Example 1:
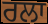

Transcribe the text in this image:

ਰਲਾ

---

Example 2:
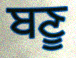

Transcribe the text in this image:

ਬਣੂ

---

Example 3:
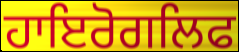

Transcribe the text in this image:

ਹਾਇਰੋਗਲਿਫ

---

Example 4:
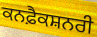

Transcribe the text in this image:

ਕਨਫ਼ੈਕਸ਼ਨਰੀ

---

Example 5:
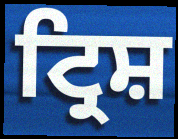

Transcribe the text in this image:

ਟ੍ਰਿਸ਼